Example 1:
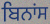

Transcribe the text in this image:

ਬਿਨਾਂਸ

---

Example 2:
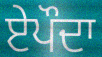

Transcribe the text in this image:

ਏਪੌਦਾ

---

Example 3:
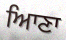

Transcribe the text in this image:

ਆਿਣਾ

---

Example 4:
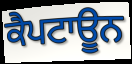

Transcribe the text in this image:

ਕੈਪਟਾਊਨ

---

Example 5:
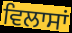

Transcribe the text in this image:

ਵਿਲਾਸਾਂ